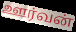
ஊர்வன்